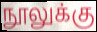
நூலுக்கு